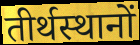
तीर्थस्थानों